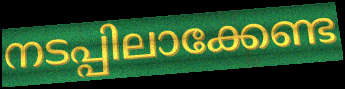
നടപ്പിലാക്കേണ്ട